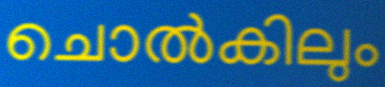
ചൊൽകിലും